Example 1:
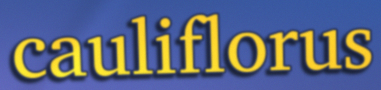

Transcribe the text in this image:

cauliflorus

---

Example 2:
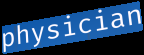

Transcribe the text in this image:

physician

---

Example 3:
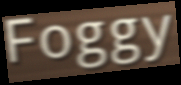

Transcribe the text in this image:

Foggy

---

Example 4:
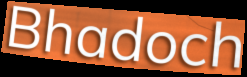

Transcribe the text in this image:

Bhadoch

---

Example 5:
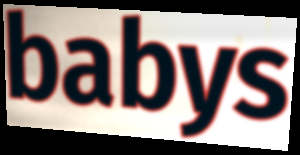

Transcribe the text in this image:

babys